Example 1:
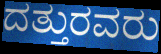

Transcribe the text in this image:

ದತ್ತುರವರು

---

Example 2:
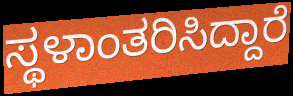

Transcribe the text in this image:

ಸ್ಥಳಾಂತರಿಸಿದ್ದಾರೆ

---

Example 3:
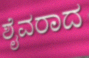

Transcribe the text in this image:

ಶೈವರಾದ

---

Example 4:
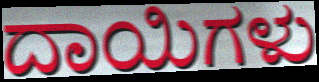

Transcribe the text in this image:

ದಾಯಿಗಳು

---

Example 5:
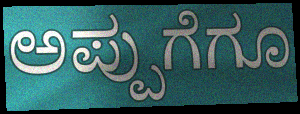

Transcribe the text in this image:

ಅಪ್ಪುಗೆಗೂ